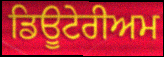
ਡਿਊਟੇਰੀਅਮ